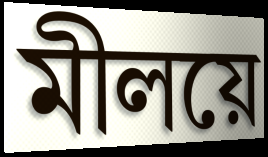
মীলয়ে